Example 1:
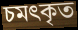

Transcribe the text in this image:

চমৎকৃত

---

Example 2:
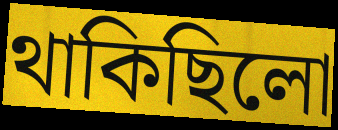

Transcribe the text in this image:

থাকিছিলো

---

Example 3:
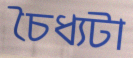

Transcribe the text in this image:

চৈধ্যটা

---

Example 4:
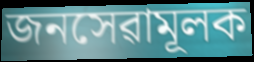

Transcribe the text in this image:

জনসেৱামূলক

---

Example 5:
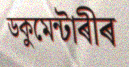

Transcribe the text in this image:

ডকুমেন্টাৰীৰ